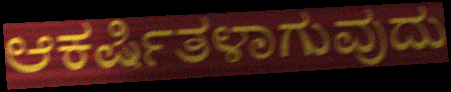
ಆಕರ್ಷಿತಳಾಗುವುದು